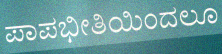
ಪಾಪಭೀತಿಯಿಂದಲೂ